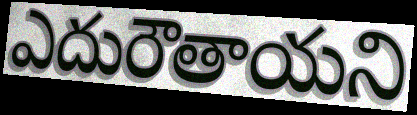
ఎదురౌతాయని